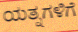
ಯತ್ನಗಳಿಗೆ